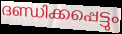
ദണ്ഡിക്കപ്പെട്ടും